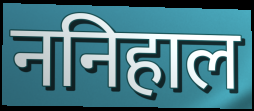
ननिहाल